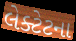
લેક્ટેટના